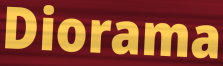
Diorama